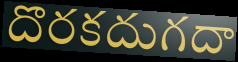
దొరకదుగదా